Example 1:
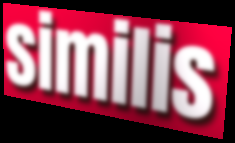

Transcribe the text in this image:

similis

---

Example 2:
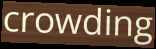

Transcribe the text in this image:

crowding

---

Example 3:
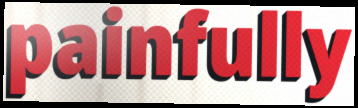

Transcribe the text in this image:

painfully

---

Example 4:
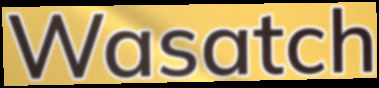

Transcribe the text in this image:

Wasatch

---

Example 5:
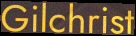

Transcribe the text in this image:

Gilchrist